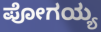
ಪೋಗಯ್ಯ